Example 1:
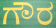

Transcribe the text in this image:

ಗೌರ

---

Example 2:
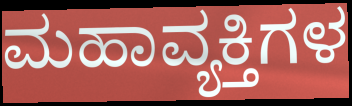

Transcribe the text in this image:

ಮಹಾವ್ಯಕ್ತಿಗಳ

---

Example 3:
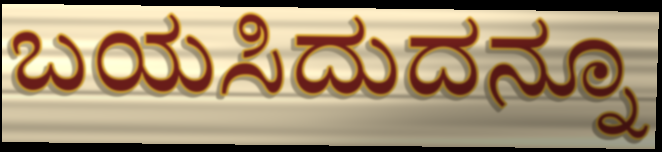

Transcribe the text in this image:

ಬಯಸಿದುದನ್ನೂ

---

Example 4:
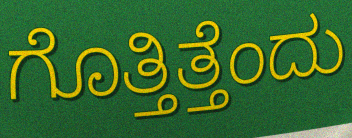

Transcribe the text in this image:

ಗೊತ್ತಿತ್ತೆಂದು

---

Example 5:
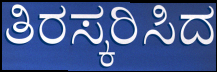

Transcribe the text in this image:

ತಿರಸ್ಕರಿಸಿದ